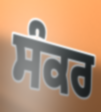
ਸੰਕਰ